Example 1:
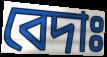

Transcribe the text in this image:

বেদাঃ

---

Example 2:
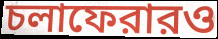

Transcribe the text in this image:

চলাফেরারও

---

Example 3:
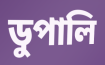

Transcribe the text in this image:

ডুপালি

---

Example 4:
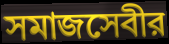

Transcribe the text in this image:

সমাজসেবীর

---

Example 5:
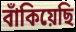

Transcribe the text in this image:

বাঁকিয়েছি